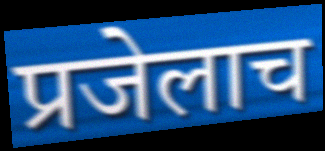
प्रजेलाच